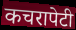
कचरापेटी